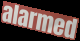
alarmed